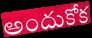
అందుకోక